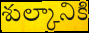
శుల్కానికి